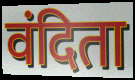
वंदिता